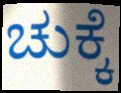
ಚುಕ್ಕೆ